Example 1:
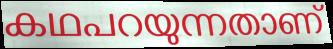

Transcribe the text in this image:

കഥപറയുന്നതാണ്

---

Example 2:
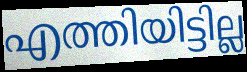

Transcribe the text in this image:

എത്തിയിട്ടില്ല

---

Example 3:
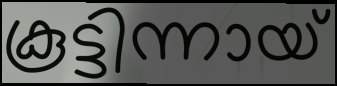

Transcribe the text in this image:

കൂട്ടിന്നായ്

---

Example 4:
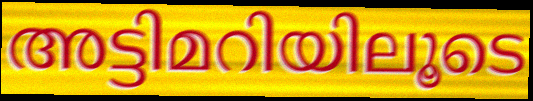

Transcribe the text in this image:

അട്ടിമറിയിലൂടെ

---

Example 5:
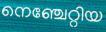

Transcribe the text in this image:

നെഞ്ചേറ്റിയ